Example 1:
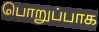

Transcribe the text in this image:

பொறுப்பாக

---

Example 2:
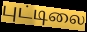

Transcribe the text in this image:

புட்டிலை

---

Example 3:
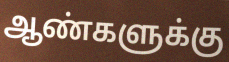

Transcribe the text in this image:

ஆண்களுக்கு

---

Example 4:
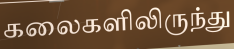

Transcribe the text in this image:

கலைகளிலிருந்து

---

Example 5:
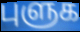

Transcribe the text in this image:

புளுக